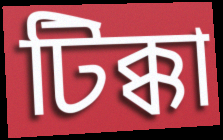
টিক্কা